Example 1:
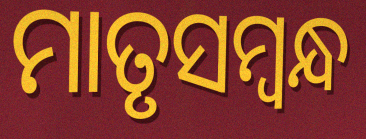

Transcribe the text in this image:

ମାତୃସମ୍ବନ୍ଧ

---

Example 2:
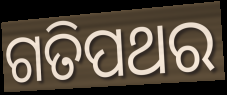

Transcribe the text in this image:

ଗତିପଥର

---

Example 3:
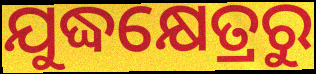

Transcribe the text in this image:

ଯୁଦ୍ଧକ୍ଷେତ୍ରରୁ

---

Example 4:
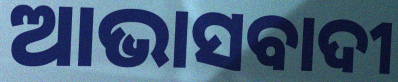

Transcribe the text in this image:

ଆଭାସବାଦୀ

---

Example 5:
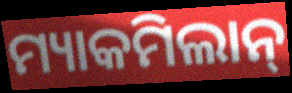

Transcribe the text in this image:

ମ୍ୟାକମିଲାନ୍